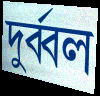
দুর্ব্বল